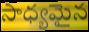
సాధ్యమైన